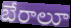
బేరాలూ